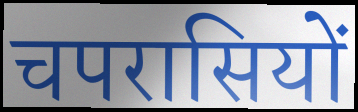
चपरासियों